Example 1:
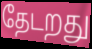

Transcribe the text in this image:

தேடறது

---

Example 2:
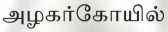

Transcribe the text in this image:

அழகர்கோயில்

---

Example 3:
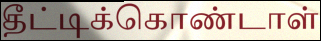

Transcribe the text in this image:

தீட்டிக்கொண்டாள்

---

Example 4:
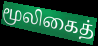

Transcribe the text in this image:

மூலிகைத்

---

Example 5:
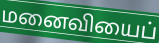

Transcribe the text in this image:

மனைவியைப்